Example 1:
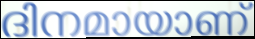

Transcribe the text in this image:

ദിനമായാണ്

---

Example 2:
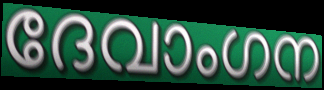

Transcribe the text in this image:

ദേവാംഗന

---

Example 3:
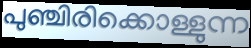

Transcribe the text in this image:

പുഞ്ചിരിക്കൊള്ളുന്ന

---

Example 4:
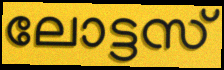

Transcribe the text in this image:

ലോട്ടസ്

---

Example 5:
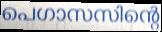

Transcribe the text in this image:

പെഗാസസിന്റെ